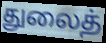
துலைத்